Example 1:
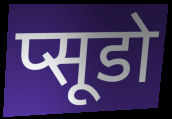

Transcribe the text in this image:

प्सूडो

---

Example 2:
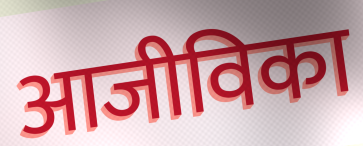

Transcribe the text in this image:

आजीविका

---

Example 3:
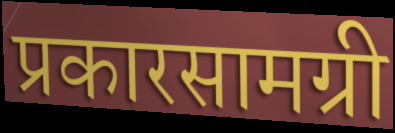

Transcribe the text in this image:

प्रकारसामग्री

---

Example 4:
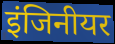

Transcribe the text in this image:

इंजिनीयर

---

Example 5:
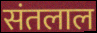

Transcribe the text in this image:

संतलाल